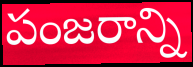
పంజరాన్ని